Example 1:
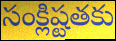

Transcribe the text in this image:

సంక్లిష్టతకు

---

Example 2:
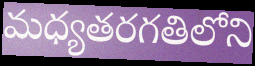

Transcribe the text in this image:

మధ్యతరగతిలోని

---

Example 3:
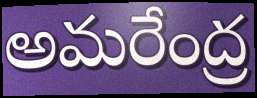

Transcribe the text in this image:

అమరేంద్ర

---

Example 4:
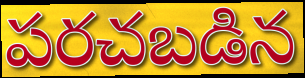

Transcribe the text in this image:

పరచబడిన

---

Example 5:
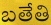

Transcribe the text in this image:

బతేతి